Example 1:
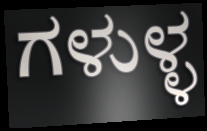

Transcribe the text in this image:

ಗಳುಳ್ಳ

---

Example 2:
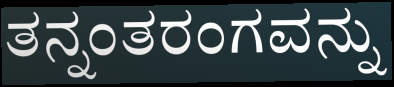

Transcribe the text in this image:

ತನ್ನಂತರಂಗವನ್ನು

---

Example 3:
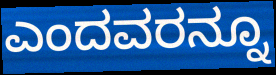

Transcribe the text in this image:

ಎಂದವರನ್ನೂ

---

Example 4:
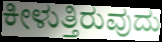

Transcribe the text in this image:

ಕೀಳುತ್ತಿರುವುದು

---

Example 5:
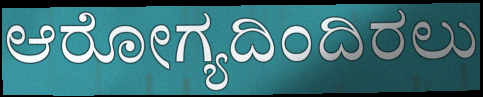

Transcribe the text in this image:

ಆರೋಗ್ಯದಿಂದಿರಲು